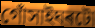
গোঁসাইঘৰটো